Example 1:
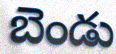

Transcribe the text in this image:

బెండు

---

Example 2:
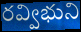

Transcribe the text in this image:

రవ్విభుని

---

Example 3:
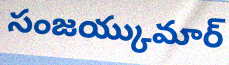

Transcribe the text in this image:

సంజయ్కుమార్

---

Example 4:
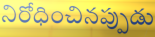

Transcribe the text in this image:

నిరోధించినప్పుడు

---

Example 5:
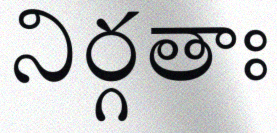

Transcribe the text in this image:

నిర్గతాః